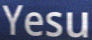
Yesu